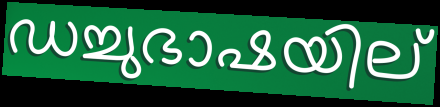
ഡച്ചുഭാഷയില്